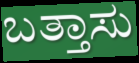
ಬತ್ತಾಸು